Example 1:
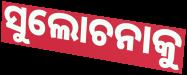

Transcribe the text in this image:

ସୁଲୋଚନାକୁ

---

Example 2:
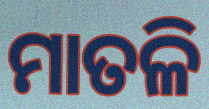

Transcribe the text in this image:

ମାତଳି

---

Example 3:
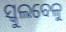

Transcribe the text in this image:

ସ୍କୁଲବେଳୁ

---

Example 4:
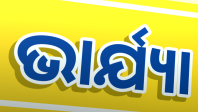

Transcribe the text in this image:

ଭାର୍ଯ୍ୟା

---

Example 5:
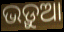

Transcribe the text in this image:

ଭଡ଼ୁଆ